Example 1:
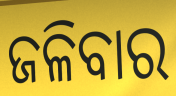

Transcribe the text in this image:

ଜଳିବାର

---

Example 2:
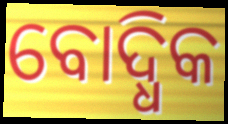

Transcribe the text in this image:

ବୋଦ୍ଧିକ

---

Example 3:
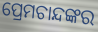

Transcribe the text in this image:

ପ୍ରେମଚାନ୍ଦଙ୍କର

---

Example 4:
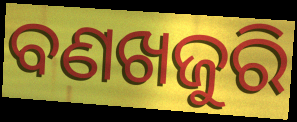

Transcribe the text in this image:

ବଣଖଜୁରି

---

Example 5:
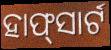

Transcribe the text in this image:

ହାଫ୍‍ସାର୍ଟ